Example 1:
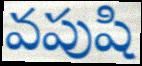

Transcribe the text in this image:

వపుషి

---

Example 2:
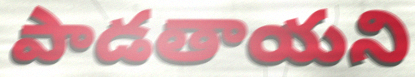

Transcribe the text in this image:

పాడతాయని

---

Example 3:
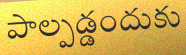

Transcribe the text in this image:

పాల్పడ్డందుకు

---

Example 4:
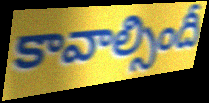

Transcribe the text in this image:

కావాల్సిందీ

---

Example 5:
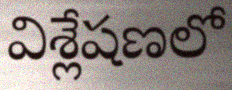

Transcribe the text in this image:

విశ్లేషణలో